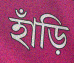
হাঁড়ি